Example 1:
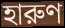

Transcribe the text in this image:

হারুণ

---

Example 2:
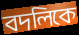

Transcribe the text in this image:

বদলিকে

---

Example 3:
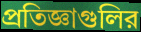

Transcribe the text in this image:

প্রতিজ্ঞাগুলির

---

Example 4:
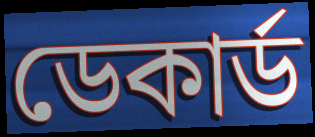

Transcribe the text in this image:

ডেকার্ড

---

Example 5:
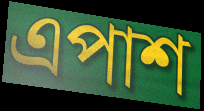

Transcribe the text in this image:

এপাশ